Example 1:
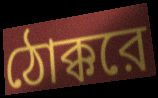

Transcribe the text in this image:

ঠোক্করে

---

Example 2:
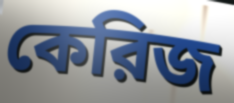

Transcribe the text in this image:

কেরিজ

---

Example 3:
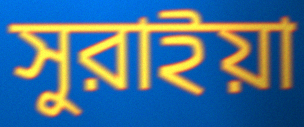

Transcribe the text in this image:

সুরাইয়া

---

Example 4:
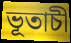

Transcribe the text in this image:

ভূতাচী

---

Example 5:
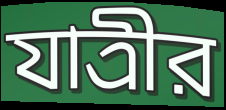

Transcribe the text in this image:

যাত্রীর